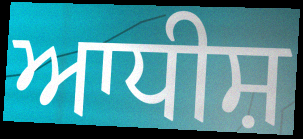
ਆਧੀਸ਼